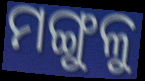
ମଙ୍ଗୁଳୁ